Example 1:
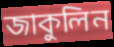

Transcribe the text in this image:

জাকুলিন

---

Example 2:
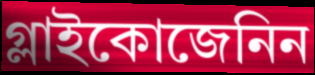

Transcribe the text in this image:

গ্লাইকোজেনিন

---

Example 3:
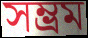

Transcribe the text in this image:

সম্ভ্রম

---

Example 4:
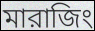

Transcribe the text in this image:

মারাজিং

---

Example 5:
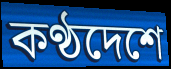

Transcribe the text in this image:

কণ্ঠদেশে